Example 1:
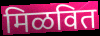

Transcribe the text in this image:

मिळवित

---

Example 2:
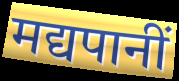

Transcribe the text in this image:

मद्यपानीं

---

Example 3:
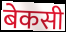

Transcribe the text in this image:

बेकसी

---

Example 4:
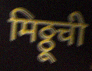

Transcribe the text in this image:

मिठ्ठूची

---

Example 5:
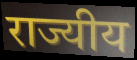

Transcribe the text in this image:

राज्यीय